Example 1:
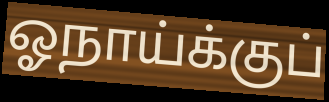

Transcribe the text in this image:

ஓநாய்க்குப்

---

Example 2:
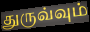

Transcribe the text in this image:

துருவ்வும்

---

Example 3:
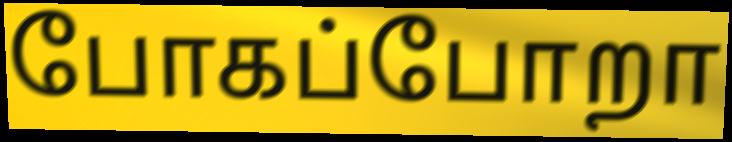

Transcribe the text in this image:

போகப்போறா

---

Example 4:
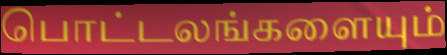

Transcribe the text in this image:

பொட்டலங்களையும்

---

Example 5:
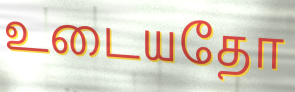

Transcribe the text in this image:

உடையதோ